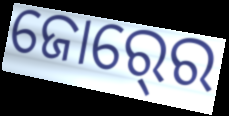
ଜୋର୍‍ରେ